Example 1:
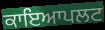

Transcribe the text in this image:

ਕਾਇਆਪਲਟ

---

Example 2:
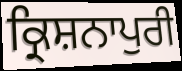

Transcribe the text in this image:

ਕ੍ਰਿਸ਼ਨਾਪੁਰੀ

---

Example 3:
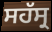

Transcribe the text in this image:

ਸਹੱਸ੍ਰ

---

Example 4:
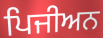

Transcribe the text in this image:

ਪਿਜੀਅਨ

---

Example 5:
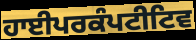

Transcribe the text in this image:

ਹਾਈਪਰਕੰਪਟੀਟਿਵ